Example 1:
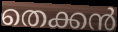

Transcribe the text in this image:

തെക്കൻ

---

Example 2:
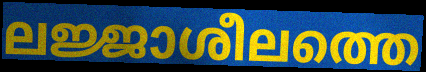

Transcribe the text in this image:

ലജ്ജാശീലത്തെ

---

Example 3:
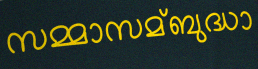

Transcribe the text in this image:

സമ്മാസമ്ബുദ്ധാ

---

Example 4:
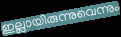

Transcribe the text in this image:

ഇല്ലായിരുന്നുവെന്നും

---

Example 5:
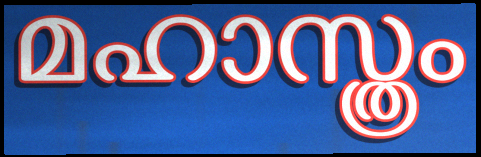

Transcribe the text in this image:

മഹാസ്ത്രം